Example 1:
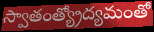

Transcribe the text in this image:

స్వాతంత్య్రోద్యమంతో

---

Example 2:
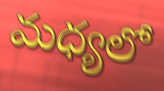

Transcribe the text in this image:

మధ్యలో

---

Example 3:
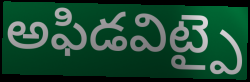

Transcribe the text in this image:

అఫిడవిట్పై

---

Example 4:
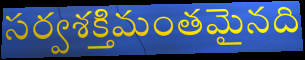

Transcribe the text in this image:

సర్వశక్తిమంతమైనది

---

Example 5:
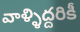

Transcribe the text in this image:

వాళ్ళిద్దరికీ